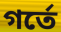
গর্তে